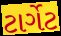
ટાર્ગેટ